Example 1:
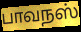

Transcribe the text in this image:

பாவநஸ்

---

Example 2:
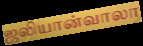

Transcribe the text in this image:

ஜலியான்வாலா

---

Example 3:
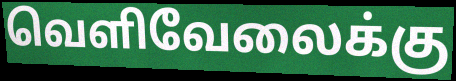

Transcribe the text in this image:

வெளிவேலைக்கு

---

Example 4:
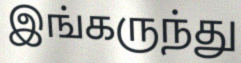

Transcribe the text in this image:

இங்கருந்து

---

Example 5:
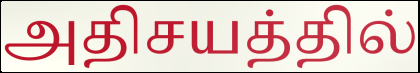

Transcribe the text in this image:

அதிசயத்தில்